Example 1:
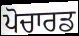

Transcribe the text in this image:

ਪੋਚਾਰਡ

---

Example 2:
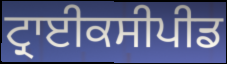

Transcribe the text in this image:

ਟ੍ਰਾਈਕਸੀਪੀਡ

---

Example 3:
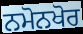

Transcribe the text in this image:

ਨਮੋਨਖੋਰ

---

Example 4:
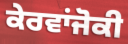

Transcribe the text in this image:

ਕੇਰਵਾਂਜੋਕੀ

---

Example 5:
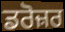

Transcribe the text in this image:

ਡਰੋਜ਼ਰ